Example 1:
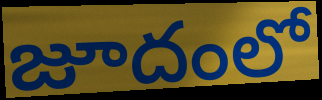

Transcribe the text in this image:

జూదంలో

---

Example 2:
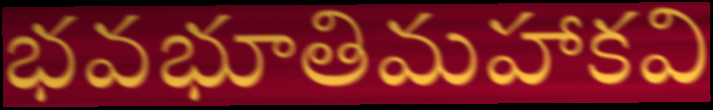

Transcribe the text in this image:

భవభూతిమహాకవి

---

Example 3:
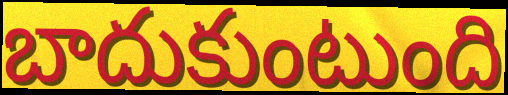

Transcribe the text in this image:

బాదుకుంటుంది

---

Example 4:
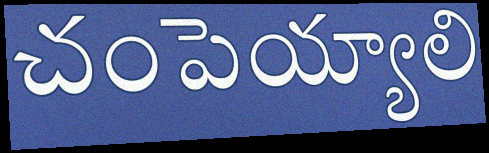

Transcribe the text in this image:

చంపెయ్యాలి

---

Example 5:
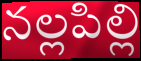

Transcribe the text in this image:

నల్లపిల్లి